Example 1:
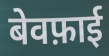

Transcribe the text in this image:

बेवफ़ाई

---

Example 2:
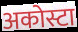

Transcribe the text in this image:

अकोस्टा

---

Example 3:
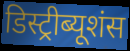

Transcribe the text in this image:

डिस्ट्रीब्यूशंस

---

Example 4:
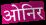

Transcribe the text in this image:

ओनिर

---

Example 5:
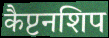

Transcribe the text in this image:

कैप्टनशिप